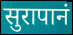
सुरापानं